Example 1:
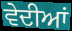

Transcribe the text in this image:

ਵੇਦੀਆਂ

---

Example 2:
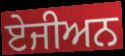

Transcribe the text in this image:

ਏਜੀਅਨ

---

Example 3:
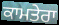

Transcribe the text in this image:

ਕਾਮਤੇਰਾ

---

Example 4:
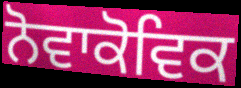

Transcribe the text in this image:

ਨੋਵਾਕੋਵਿਕ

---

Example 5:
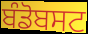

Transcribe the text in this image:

ਬੰਡੋਬਸਟ